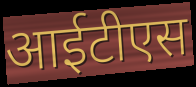
आईटीएस